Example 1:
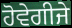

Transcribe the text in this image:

ਹੋਵੇਗੀਜੇ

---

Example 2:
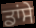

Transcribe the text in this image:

ਡਾਂਸੇ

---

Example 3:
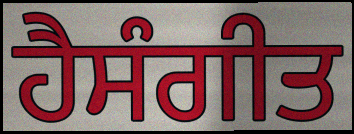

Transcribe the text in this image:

ਹੈਸੰਗੀਤ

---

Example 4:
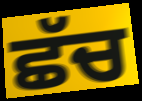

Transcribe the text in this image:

ਛੱਚ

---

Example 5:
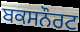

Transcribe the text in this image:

ਬਕਸਨੌਰਟ